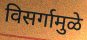
विसर्गामुळे